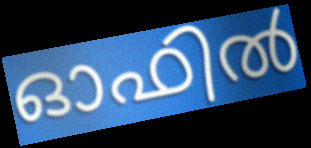
ഓഫിൽ